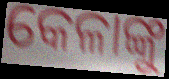
କେଳାଙ୍କୁ